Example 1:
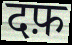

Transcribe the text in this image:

दफ़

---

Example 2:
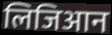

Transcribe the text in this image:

लिजिआन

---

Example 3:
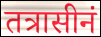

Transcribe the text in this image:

तत्रासीनं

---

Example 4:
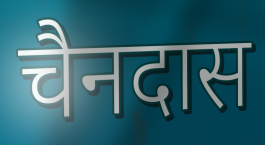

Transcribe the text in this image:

चैनदास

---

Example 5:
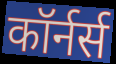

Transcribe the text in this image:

कॉर्नर्स